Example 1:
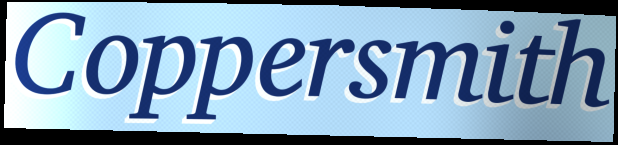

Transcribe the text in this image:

Coppersmith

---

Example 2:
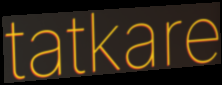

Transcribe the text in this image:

tatkare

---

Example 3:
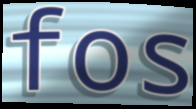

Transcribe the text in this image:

fos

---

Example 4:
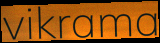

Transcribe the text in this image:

vikrama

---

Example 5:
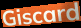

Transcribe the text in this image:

Giscard